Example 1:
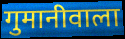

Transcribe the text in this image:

गुमानीवाला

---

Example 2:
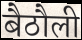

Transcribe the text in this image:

बैठौली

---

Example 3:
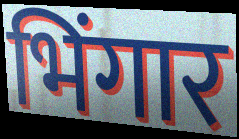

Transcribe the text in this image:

भिंगार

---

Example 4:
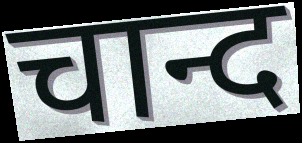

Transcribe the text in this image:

चान्द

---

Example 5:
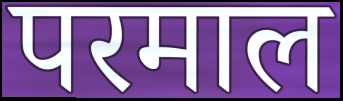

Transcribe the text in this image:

परमाल